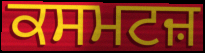
ਕਸਮਟਜ਼